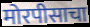
मोरपीसाचा